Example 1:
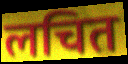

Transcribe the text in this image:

लचित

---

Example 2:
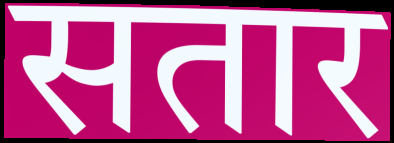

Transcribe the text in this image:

सतार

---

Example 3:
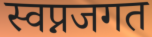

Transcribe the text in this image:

स्वप्नजगत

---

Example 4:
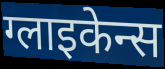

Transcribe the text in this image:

ग्लाइकेन्स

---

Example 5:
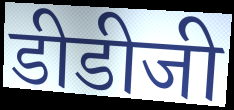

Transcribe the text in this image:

डीडीजी